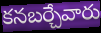
కనబర్చేవారు